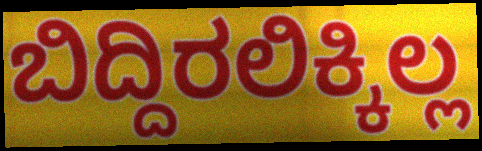
ಬಿದ್ದಿರಲಿಕ್ಕಿಲ್ಲ